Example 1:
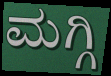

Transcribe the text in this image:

ಮಗ್ಗಿ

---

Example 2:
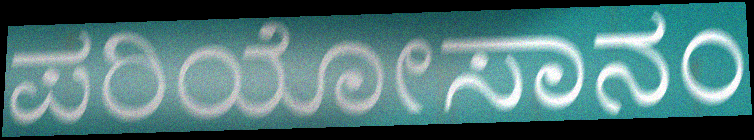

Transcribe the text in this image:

ಪರಿಯೋಸಾನಂ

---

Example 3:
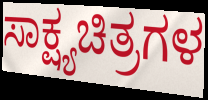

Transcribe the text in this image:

ಸಾಕ್ಷ್ಯಚಿತ್ರಗಳ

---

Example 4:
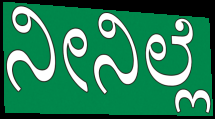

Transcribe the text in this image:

ನೀನಿಲ್ಲೆ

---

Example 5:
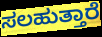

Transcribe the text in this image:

ಸಲಹುತ್ತಾರೆ